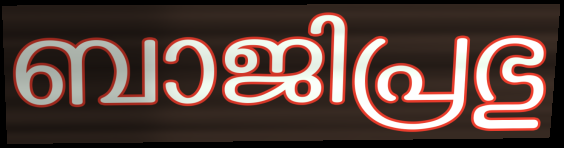
ബാജിപ്രഭു